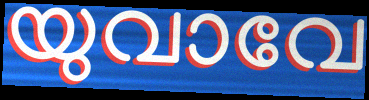
യുവാവേ